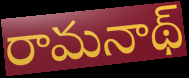
రామనాథ్